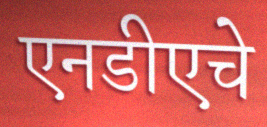
एनडीएचे